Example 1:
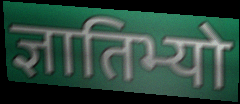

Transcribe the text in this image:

ज्ञातिभ्यो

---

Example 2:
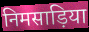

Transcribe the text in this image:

निमसाड़िया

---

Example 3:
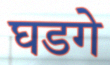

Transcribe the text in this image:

घडगे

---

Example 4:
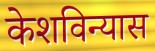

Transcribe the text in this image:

केशविन्यास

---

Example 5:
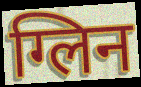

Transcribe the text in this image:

ग्लिन